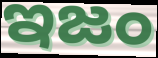
ఇజం